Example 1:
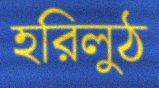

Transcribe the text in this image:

হরিলুঠ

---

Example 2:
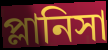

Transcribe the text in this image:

প্লানিসা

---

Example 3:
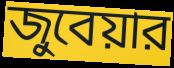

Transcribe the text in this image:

জুবেয়ার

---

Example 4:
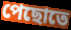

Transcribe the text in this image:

পেছোতে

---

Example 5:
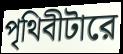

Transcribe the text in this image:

পৃথিবীটারে